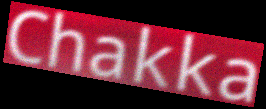
Chakka